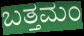
ಬತ್ತಮಂ